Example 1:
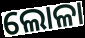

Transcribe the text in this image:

ଲୋଳା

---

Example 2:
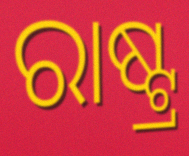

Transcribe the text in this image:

ରାଷ୍ଟ୍ର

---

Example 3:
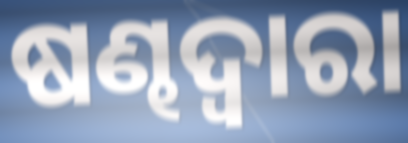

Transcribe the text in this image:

ଷଣ୍ଢଦ୍ୱାରା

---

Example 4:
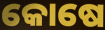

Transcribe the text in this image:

କୋଷେ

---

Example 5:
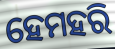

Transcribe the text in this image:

ହେମହରି